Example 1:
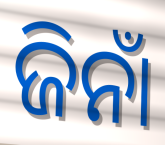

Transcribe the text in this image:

ଜିନାଁ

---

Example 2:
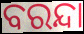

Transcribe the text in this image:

ବରନ୍ଦା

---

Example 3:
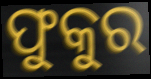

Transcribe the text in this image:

ଫୁକୁର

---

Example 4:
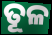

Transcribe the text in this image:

ତୂଳ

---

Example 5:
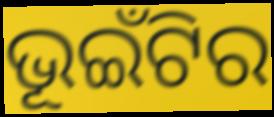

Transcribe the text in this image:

ଭୂଇଁଟିର